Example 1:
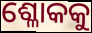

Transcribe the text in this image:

ଶ୍ଳୋକକୁ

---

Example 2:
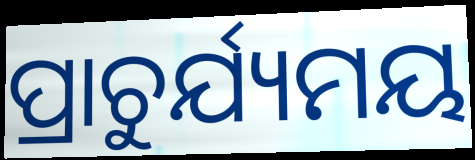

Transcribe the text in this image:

ପ୍ରାଚୁର୍ଯ୍ୟମୟ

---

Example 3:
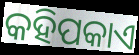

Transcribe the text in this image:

କହିପକାଏ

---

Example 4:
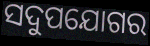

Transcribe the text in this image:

ସଦୁପଯୋଗର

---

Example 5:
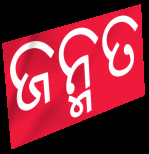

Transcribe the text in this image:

ଜନ୍ମତ